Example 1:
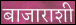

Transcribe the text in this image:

बाजाराशी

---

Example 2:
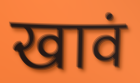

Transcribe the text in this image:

खावं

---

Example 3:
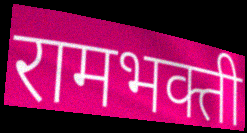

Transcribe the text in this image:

रामभक्ती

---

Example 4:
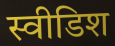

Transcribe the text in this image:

स्वीडिश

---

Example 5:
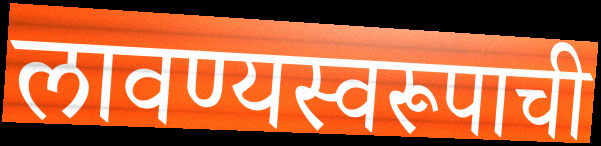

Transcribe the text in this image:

लावण्यस्वरूपाची